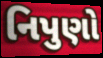
નિપુણો